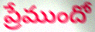
ప్రేముందో